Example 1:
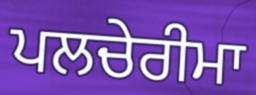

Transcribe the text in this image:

ਪਲਚੇਰੀਮਾ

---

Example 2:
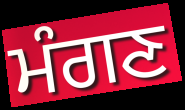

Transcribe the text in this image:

ਮੰਗਣ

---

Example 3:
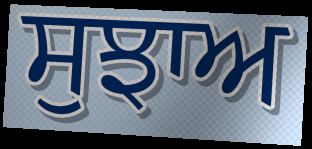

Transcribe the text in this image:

ਸੁਝਾਅ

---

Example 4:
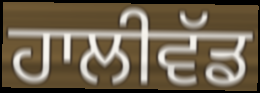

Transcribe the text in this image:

ਹਾਲੀਵੱਡ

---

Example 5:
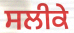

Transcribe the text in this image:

ਸਲੀਕੇ